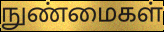
நுண்மைகள்